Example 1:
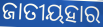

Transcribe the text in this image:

ଜାତୀୟହାର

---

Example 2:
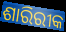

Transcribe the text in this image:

ଶାରିରୀକ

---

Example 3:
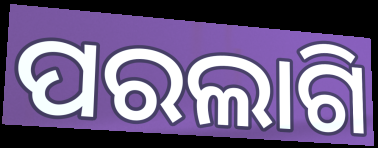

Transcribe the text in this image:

ପରଲାଗି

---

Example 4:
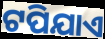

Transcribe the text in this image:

ଟପିଯାଏ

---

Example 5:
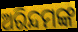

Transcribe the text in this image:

ଅରିନ୍ଦମଙ୍କ